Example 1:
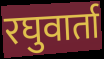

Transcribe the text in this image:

रघुवार्ता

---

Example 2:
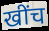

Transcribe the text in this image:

खींच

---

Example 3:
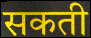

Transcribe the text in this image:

सकती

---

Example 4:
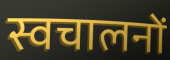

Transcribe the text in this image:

स्वचालनों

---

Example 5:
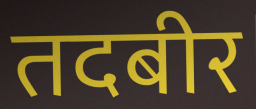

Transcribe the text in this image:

तदबीर